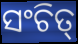
ସଂଚିତ୍